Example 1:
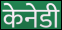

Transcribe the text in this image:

केनेडी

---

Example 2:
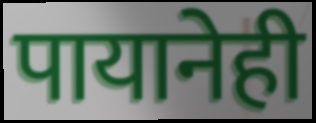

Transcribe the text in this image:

पायानेही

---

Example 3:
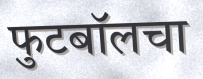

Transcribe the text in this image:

फुटबॉलचा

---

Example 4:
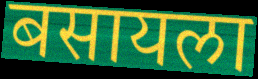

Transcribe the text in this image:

बसायला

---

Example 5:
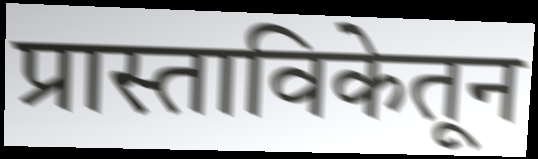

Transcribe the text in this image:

प्रास्ताविकेतून